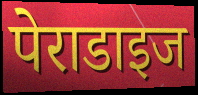
पेराडाइज